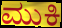
ಮುಕಿ